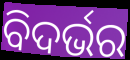
ବିଦର୍ଭର